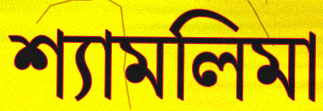
শ্যামলিমা